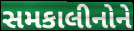
સમકાલીનોને